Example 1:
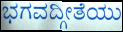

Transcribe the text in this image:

ಭಗವದ್ಗೀತೆಯು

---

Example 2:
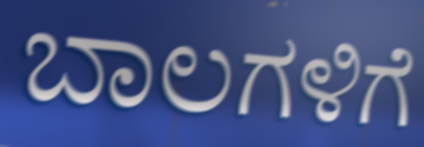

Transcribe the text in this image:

ಬಾಲಗಳಿಗೆ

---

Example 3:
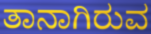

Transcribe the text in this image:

ತಾನಾಗಿರುವ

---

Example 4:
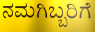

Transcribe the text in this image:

ನಮಗಿಬ್ಬರಿಗೆ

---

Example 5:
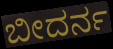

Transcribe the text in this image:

ಬೀದರ್ನ